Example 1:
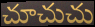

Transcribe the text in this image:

చూచుచు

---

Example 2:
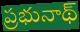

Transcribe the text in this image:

ప్రభునాథ్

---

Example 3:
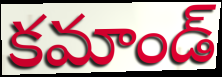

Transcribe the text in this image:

కమాండ్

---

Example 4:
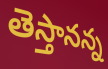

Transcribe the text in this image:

తెస్తానన్న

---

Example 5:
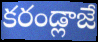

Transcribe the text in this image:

కరండ్లాజే